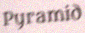
Pyramid